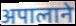
अपालाने